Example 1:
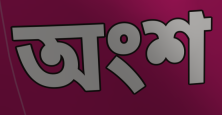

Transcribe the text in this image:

অংশ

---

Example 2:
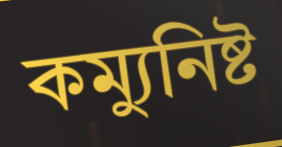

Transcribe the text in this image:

কম্যুনিষ্ট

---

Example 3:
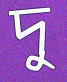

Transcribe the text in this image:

দু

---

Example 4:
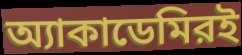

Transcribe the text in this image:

অ্যাকাডেমিরই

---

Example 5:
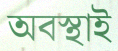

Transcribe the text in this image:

অবস্থাই